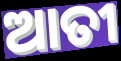
ଆତୀ